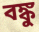
বঙ্কু